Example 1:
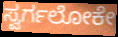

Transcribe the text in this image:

ಸ್ವರ್ಗಲೋಕೇ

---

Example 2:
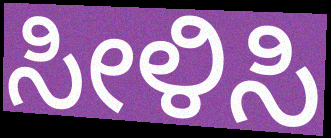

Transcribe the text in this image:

ಸೀಳಿಸಿ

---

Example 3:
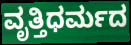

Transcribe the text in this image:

ವೃತ್ತಿಧರ್ಮದ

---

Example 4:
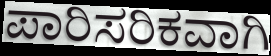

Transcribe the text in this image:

ಪಾರಿಸರಿಕವಾಗಿ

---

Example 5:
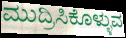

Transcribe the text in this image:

ಮುದ್ರಿಸಿಕೊಳ್ಳುವ